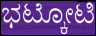
ಭಟ್ಕೋಟಿ